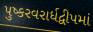
પુષ્કરવરાર્ધદ્વીપમાં